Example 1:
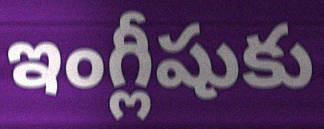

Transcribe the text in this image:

ఇంగ్లీషుకు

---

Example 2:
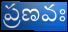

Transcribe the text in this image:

ప్రణవః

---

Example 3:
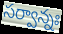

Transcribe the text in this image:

సర్వాన్నః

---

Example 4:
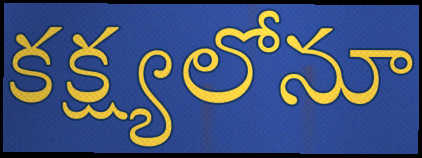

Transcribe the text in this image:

కక్ష్యలోనూ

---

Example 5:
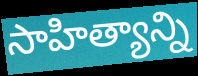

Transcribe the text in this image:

సాహిత్యాన్ని